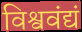
विश्ववंद्यं